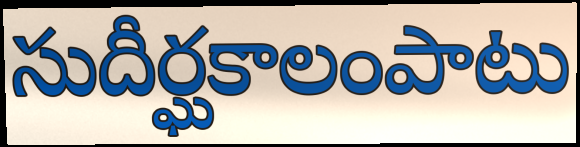
సుదీర్ఘకాలంపాటు